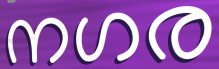
നഗര